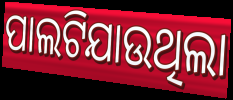
ପାଲଟିଯାଉଥିଲା